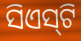
ସିଏସ୍‌ଟି